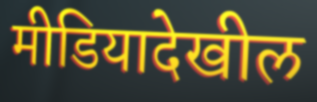
मीडियादेखील